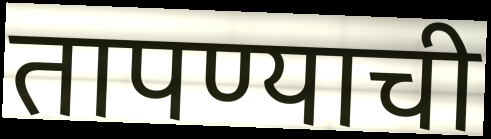
तापण्याची